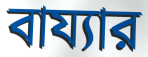
বায্যার